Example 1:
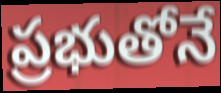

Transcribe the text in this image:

ప్రభుతోనే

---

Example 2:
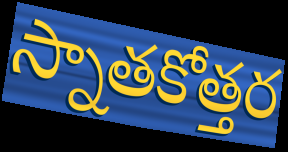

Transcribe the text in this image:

స్నాతకోత్తర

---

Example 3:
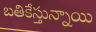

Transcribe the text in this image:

బతికేస్తున్నాయి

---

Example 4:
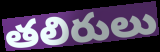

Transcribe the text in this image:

తలిరులు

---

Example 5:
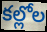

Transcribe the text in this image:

కల్లోల